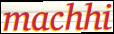
machhi